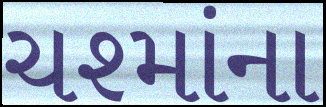
ચશ્માંના